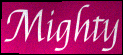
Mighty